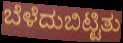
ಬೆಳೆದುಬಿಟ್ಟಿತು